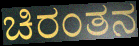
ಚಿರಂತನ